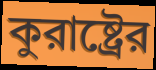
কুরাষ্ট্রের